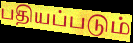
பதியப்படும்